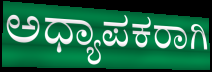
ಅಧ್ಯಾಪಕರಾಗಿ